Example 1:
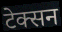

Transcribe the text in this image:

टेक्सन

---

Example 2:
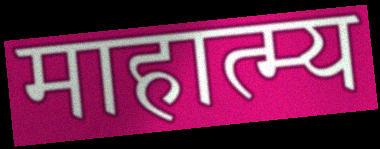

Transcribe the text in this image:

माहात्म्य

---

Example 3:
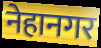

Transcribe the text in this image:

नेहानगर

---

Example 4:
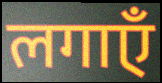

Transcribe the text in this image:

लगाएँ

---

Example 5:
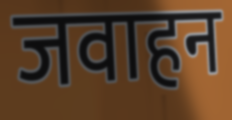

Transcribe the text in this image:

जवाहन